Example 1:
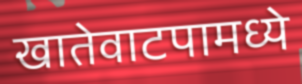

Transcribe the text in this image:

खातेवाटपामध्ये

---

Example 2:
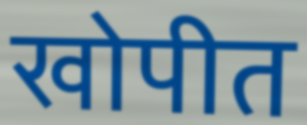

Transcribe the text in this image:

खोपीत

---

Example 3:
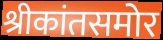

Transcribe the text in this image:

श्रीकांतसमोर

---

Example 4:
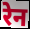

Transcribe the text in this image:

रेन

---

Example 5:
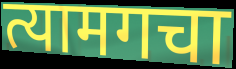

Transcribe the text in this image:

त्यामगचा